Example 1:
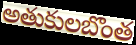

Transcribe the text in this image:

అతుకులబొంత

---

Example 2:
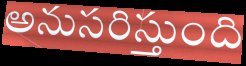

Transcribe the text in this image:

అనుసరిస్తుంది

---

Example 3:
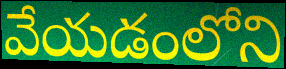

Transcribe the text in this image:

వేయడంలోని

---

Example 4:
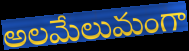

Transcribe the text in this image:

అలమేలుమంగా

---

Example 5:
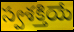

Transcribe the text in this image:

స్వశక్తియే